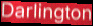
Darlington